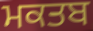
ਮਕਤਬ